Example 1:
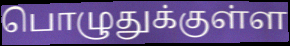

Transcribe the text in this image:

பொழுதுக்குள்ள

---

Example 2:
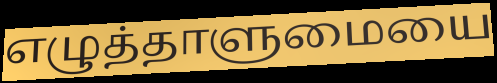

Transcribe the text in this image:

எழுத்தாளுமையை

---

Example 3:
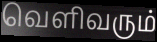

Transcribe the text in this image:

வெளிவரும்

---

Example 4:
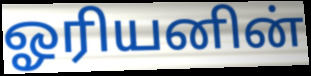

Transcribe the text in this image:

ஓரியனின்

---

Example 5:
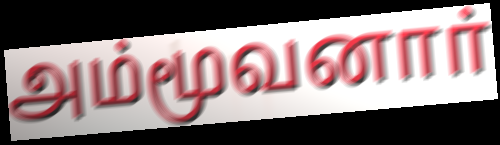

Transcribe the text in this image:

அம்மூவனார்